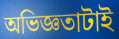
অভিজ্ঞতাটাই